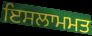
ਇਸਲਾਮਮਤ